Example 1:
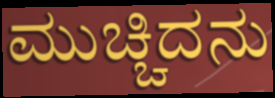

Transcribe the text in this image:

ಮುಚ್ಚಿದನು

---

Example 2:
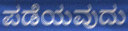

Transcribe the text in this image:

ಪಡೆಯವುದು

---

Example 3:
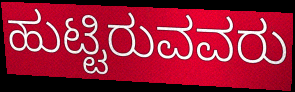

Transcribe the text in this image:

ಹುಟ್ಟಿರುವವರು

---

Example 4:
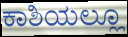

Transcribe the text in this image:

ಕಾಶಿಯಲ್ಲೂ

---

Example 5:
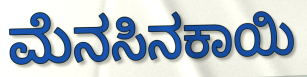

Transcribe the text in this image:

ಮೆನಸಿನಕಾಯಿ